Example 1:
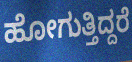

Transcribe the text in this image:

ಹೋಗುತ್ತಿದ್ದರೆ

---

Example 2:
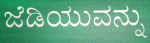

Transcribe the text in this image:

ಜೆಡಿಯುವನ್ನು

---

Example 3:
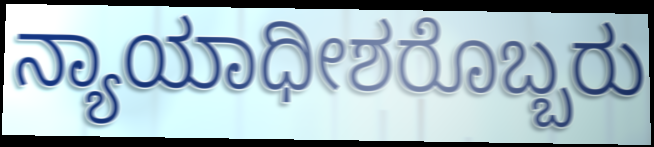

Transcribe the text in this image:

ನ್ಯಾಯಾಧೀಶರೊಬ್ಬರು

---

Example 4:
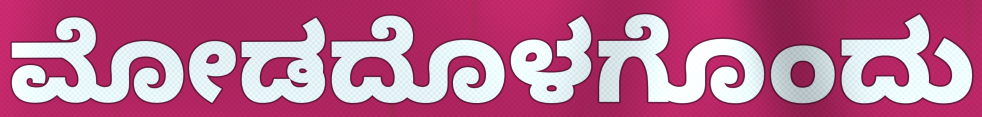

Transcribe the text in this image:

ಮೋಡದೊಳಗೊಂದು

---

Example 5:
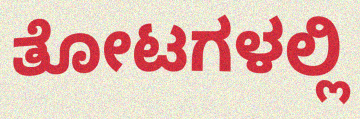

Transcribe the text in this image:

ತೋಟಗಳಲ್ಲಿ